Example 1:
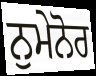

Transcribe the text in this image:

ਨੁਮੇਨੋਰ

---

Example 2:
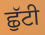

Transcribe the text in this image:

ਛੁੱਟੀ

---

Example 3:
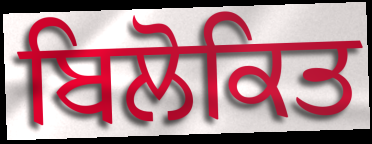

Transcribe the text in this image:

ਬਿਲੋਕਿਤ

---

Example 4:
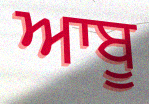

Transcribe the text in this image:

ਆਬੂ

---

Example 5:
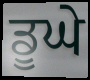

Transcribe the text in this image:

ਡੂਘੇ